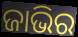
ଜାଭିର